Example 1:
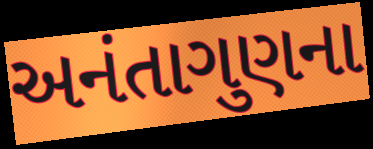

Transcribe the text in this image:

અનંતાગુણના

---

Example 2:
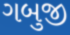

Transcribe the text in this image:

ગબુજી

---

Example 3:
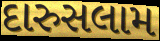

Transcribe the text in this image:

દારુસલામ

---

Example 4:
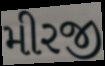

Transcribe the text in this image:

મીરજી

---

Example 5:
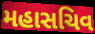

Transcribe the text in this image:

મહાસચિવ